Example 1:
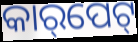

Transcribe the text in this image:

କାର୍‌ପେଟ୍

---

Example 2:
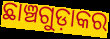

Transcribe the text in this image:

ଛାଞ୍ଚଗୁଡ଼ାକର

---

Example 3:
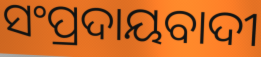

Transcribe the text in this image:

ସଂପ୍ରଦାୟବାଦୀ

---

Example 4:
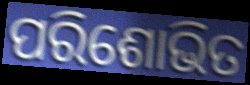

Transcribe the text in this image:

ପରିଶୋଭିତ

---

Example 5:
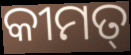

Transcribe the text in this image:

କୀମତ୍